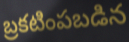
బ్రకటింపబడిన